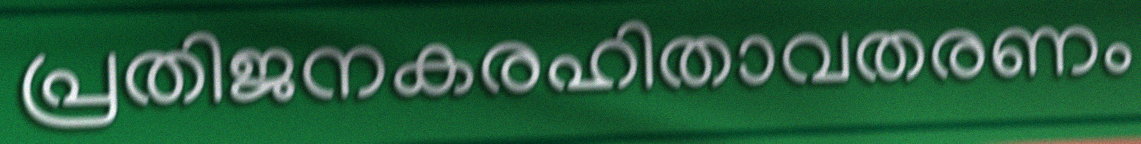
പ്രതിജനകരഹിതാവതരണം